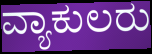
ವ್ಯಾಕುಲರು